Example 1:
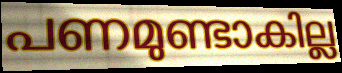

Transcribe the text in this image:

പണമുണ്ടാകില്ല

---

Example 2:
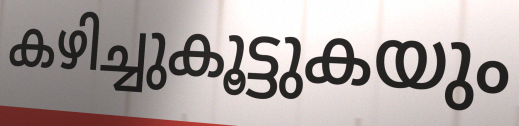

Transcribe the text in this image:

കഴിച്ചുകൂട്ടുകയും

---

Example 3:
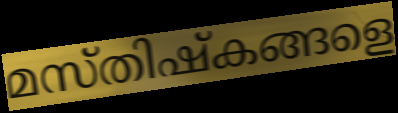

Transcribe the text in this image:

മസ്തിഷ്കങ്ങളെ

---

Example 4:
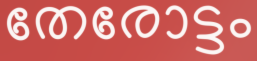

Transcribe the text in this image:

തേരോട്ടം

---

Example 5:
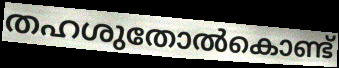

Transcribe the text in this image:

തഹശുതോൽകൊണ്ട്